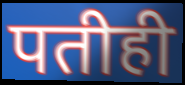
पतीही